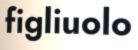
figliuolo